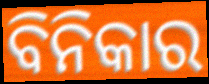
ବିନିକାର